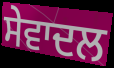
ਸੇਵਾਦਲ